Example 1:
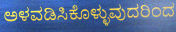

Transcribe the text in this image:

ಅಳವಡಿಸಿಕೊಳ್ಳುವುದರಿಂದ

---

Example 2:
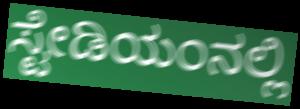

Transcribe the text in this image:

ಸ್ಟೇಡಿಯಂನಲ್ಲಿ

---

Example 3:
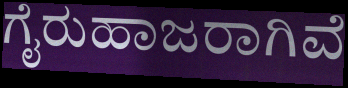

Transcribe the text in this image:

ಗೈರುಹಾಜರಾಗಿವೆ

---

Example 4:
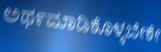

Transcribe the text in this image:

ಅರ್ಥಮಾಡಿಕೊಳ್ಳಬೇಕೇ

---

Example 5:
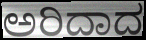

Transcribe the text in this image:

ಅರಿದಾದ